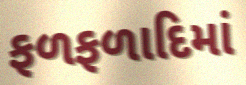
ફળફળાદિમાં